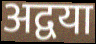
अद्वया